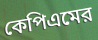
কেপিএমের